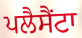
ਪਲੈਸੈਂਟਾ